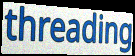
threading